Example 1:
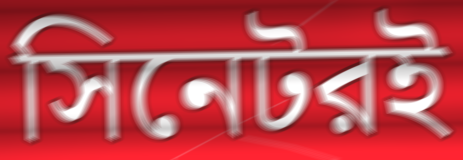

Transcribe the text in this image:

সিনেটরই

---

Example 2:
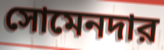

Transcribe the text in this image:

সোমেনদার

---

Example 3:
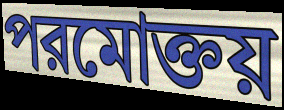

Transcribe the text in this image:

পরমোক্তয়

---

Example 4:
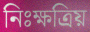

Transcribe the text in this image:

নিঃক্ষত্রিয়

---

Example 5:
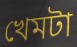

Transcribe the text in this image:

খেমটা